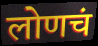
लोणचं